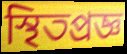
স্থিতপ্রজ্ঞ